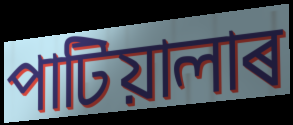
পাটিয়ালাৰ